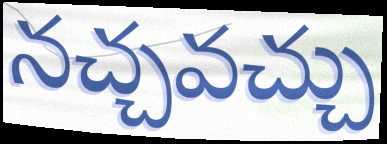
నచ్చవచ్చు